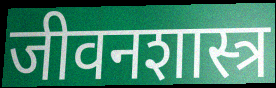
जीवनशास्त्र